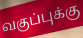
வகுப்புக்கு